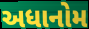
અધાનોમ